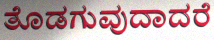
ತೊಡಗುವುದಾದರೆ